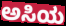
ಅಸಿಯ